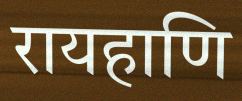
रायहाणि